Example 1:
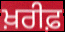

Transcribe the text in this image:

ਖ਼ਰੀਫ਼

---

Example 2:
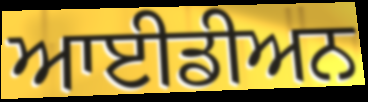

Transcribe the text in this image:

ਆਈਡੀਅਨ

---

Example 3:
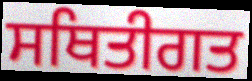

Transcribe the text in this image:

ਸਥਿਤੀਗਤ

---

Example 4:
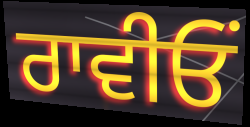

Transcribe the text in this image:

ਰਾਵੀਓਂ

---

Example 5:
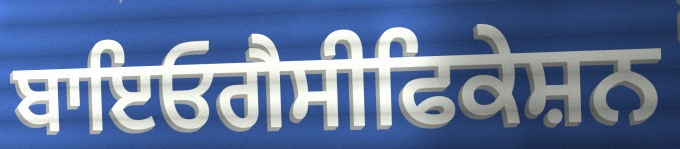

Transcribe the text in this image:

ਬਾਇਓਗੈਸੀਫਿਕੇਸ਼ਨ